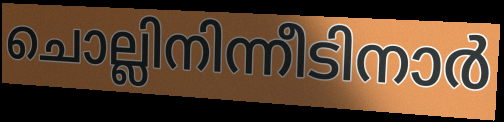
ചൊല്ലിനിന്നീടിനാർ